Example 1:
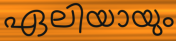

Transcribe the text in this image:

ഏലിയായും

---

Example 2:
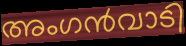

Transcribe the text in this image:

അംഗൻവാടി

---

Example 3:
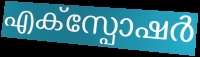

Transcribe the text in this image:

എക്സ്പോഷർ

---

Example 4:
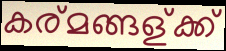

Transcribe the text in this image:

കര്മങ്ങള്ക്ക്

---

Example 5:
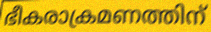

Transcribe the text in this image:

ഭീകരാക്രമണത്തിന്